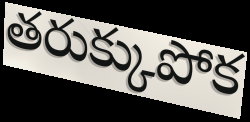
తరుక్కుపోక